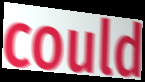
could